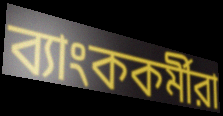
ব্যাংককর্মীরা